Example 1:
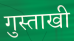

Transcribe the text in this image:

गुस्ताखी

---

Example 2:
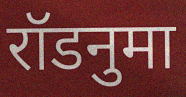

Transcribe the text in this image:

रॉडनुमा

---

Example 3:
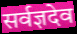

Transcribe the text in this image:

सर्वज्ञदेव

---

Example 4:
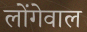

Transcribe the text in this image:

लोंगेवाल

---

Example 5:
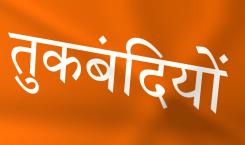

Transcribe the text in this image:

तुकबंदियों